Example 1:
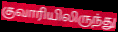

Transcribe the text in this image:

குவாரியிலிருந்து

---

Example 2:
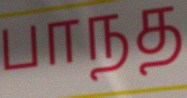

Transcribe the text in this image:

பாநத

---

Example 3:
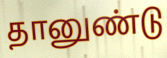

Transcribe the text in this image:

தானுண்டு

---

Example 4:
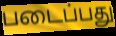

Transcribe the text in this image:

படைப்பது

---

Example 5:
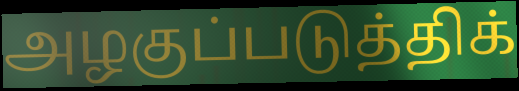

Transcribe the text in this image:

அழகுப்படுத்திக்